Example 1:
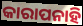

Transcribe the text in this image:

କାରାପନାହି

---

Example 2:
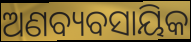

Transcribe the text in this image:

ଅଣବ୍ୟବସାୟିକ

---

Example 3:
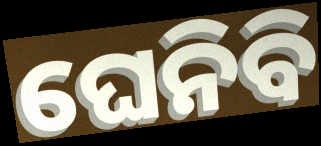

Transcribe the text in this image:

ଘେନିବି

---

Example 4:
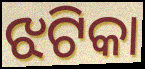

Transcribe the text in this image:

ଝଟିକା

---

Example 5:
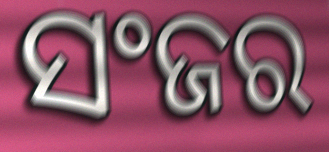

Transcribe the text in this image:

ସଂଜର